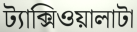
ট্যাক্সিওয়ালাটা